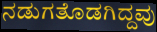
ನಡುಗತೊಡಗಿದ್ದವು